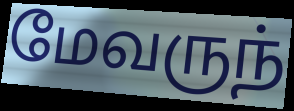
மேவருந்